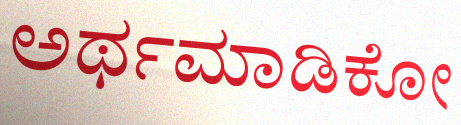
ಅರ್ಥಮಾಡಿಕೋ